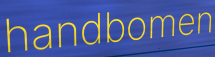
handbomen